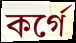
কর্গে